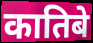
कातिबे